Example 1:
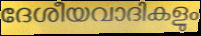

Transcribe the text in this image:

ദേശീയവാദികളും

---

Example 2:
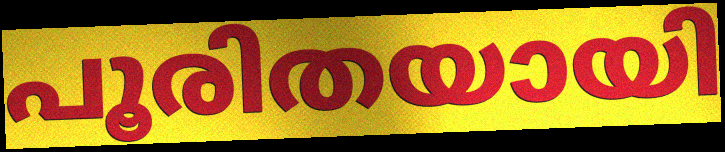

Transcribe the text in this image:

പൂരിതയായി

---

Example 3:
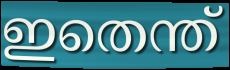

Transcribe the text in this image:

ഇതെന്ത്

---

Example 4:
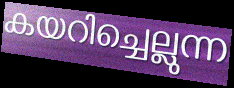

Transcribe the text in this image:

കയറിച്ചെല്ലുന്ന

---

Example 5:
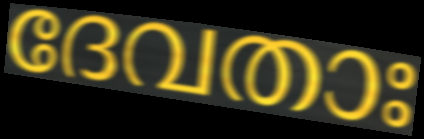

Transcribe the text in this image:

ദേവതാഃ